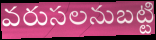
వరుసలనుబట్టి